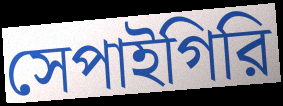
সেপাইগিরি